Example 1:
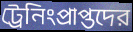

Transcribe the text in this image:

ট্রেনিংপ্রাপ্তদের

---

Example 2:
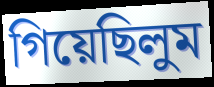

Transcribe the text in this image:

গিয়েছিলুম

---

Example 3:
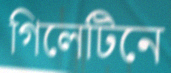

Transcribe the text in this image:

গিলেটিনে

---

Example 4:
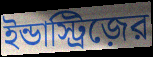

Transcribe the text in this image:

ইন্ডাস্ট্রিজ়ের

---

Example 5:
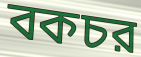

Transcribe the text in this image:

বকচর